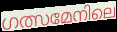
ഗത്സമേനിലെ